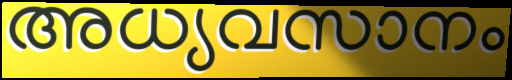
അധ്യവസാനം